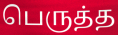
பெருத்த